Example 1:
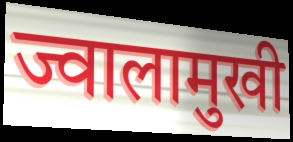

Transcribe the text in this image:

ज्‍वालामुखी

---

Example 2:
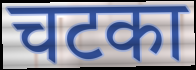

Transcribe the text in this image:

चटका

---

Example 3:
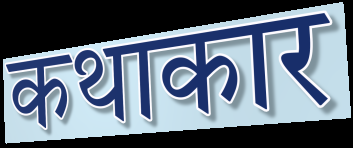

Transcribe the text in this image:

कथाकार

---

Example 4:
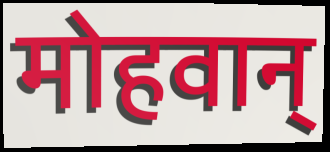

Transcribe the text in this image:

मोहवान्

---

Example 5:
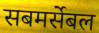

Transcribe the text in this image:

सबमर्सेबल